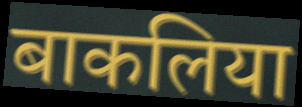
बाकलिया